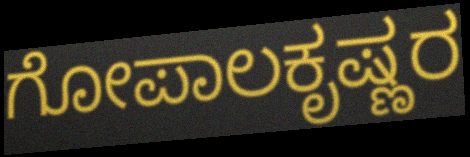
ಗೋಪಾಲಕೃಷ್ಣರ